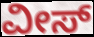
ವೀಸ್